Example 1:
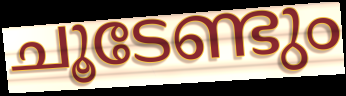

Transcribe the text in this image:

ചൂടേണ്ടും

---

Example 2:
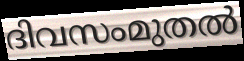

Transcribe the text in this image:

ദിവസംമുതൽ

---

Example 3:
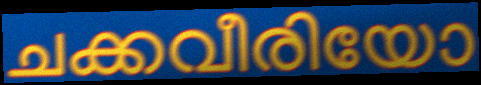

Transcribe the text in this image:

ചക്കവീരിയോ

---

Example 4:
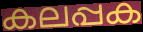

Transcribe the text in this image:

കലപ്പക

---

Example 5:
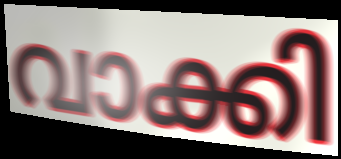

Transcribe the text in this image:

വാക്കി